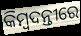
କିମ୍ବଦନ୍ତୀରେ